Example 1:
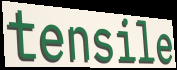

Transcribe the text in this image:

tensile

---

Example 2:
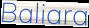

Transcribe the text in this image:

Baliara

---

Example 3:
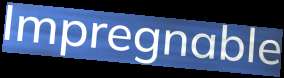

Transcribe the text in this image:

Impregnable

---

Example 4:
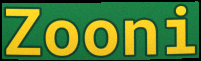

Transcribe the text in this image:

Zooni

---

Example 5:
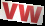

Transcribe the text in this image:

vw